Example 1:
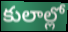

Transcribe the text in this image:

కులాల్లో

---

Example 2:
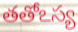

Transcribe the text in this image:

తతోఽస్య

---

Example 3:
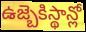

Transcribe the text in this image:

ఉజ్బెకిస్థాన్లో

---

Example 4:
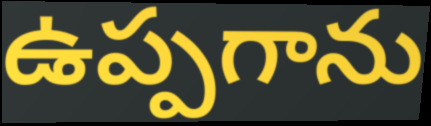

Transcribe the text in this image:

ఉప్పగాను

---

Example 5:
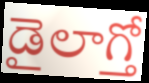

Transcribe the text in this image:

డైలాగ్తో